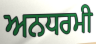
ਅਨਧਰਮੀ